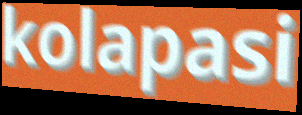
kolapasi